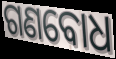
ଗଣବୋଧ